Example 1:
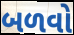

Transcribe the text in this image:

બળવો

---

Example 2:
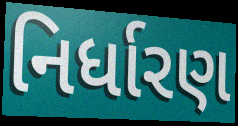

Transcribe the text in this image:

નિર્ધારણ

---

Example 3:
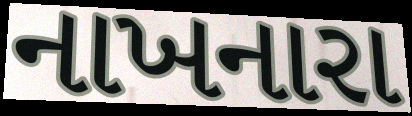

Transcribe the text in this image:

નાખનારા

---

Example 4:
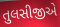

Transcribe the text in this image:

તુલસીજીએ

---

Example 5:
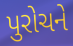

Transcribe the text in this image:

પુરોચને